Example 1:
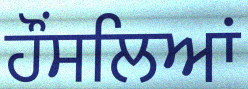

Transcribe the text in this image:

ਹੌਂਸਲਿਆਂ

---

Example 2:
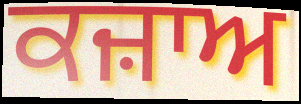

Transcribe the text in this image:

ਕਜ਼ਾਅ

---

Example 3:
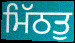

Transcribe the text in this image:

ਮਿੱਠਤੁ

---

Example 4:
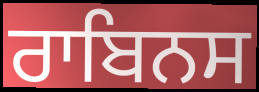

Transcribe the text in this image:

ਰਾਬਿਨਸ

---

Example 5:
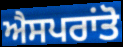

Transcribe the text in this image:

ਐਸਪਰਾਂਤੋ